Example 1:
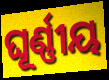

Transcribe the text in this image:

ଘୂର୍ଣ୍ଣୀୟ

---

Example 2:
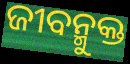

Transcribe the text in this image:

ଜୀବନ୍ମୁକ୍ତ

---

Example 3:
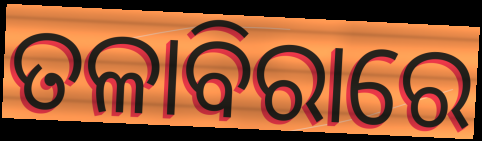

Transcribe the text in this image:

ତଳାବିରାରେ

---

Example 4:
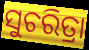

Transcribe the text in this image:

ସୁଚରିତ୍ରା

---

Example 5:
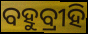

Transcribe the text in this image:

ବହୁବ୍ରୀହି